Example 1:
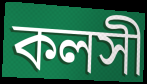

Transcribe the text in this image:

কলসী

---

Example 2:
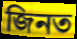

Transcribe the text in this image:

জিনত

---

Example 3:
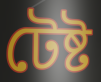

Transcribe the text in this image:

টেষ্ট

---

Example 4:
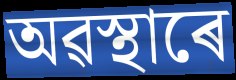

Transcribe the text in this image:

অৱস্থাৰে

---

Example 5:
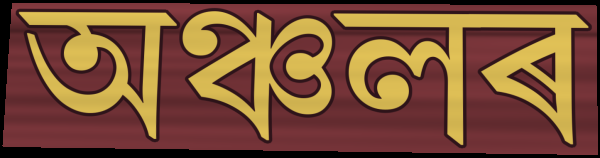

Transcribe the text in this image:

অঞ্চলৰ